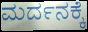
ಮರ್ದನಕ್ಕೆ